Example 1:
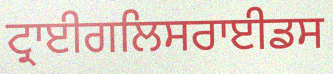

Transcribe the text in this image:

ਟ੍ਰਾਈਗਲਿਸਰਾਈਡਸ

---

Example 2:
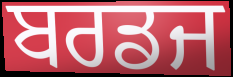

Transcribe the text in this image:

ਬਰਡਜ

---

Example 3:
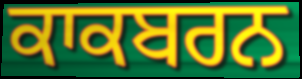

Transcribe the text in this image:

ਕਾਕਬਰਨ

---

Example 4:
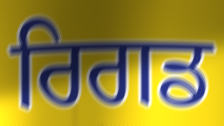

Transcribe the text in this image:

ਰਿਗਡ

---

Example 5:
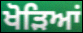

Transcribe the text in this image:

ਖੋੜਿਆਂ